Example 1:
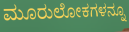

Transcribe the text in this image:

ಮೂರುಲೋಕಗಳನ್ನೂ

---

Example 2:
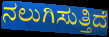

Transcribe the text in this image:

ನಲುಗಿಸುತ್ತಿದೆ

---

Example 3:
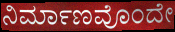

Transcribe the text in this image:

ನಿರ್ಮಾಣವೊಂದೇ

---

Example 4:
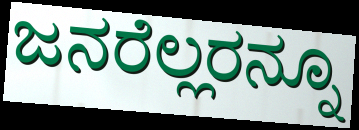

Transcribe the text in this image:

ಜನರೆಲ್ಲರನ್ನೂ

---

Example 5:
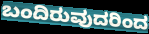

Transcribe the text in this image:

ಬಂದಿರುವುದರಿಂದ